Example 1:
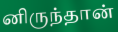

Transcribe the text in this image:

னிருந்தான்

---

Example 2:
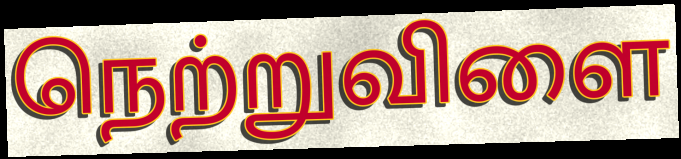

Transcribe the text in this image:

நெற்றுவிளை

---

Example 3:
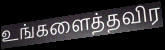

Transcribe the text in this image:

உங்களைத்தவிர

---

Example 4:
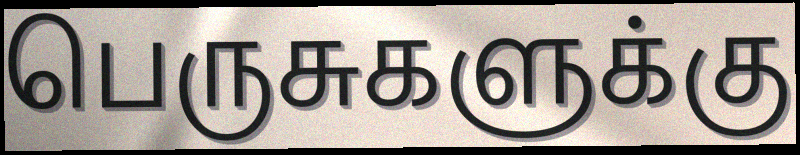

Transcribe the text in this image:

பெருசுகளுக்கு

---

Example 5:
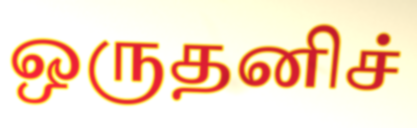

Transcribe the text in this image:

ஒருதனிச்